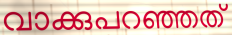
വാക്കുപറഞ്ഞത്